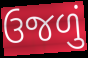
ઉજળું